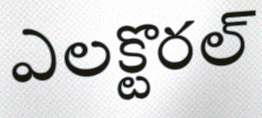
ఎలక్టొరల్